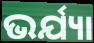
ଭର୍ଯ୍ୟା